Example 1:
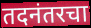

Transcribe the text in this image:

तदनंतरचा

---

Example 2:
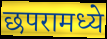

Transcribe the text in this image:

छपरामध्ये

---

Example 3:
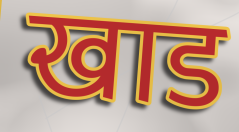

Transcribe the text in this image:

खाड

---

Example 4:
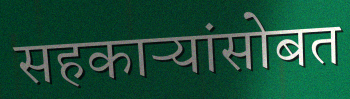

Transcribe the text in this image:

सहकाऱ्यांसोबत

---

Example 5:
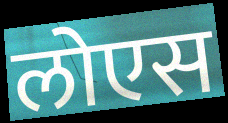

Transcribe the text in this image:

लोएस